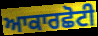
ਆਕਾਰਛੋਟੀ